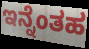
ಇನ್ನೆಂತಹ